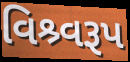
વિશ્ર્વરૂપ